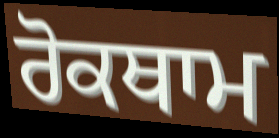
ਰੋਕਥਾਮ